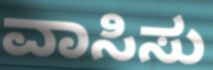
ವಾಸಿಸು